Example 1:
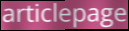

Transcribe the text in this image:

articlepage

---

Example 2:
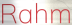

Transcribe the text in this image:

Rahm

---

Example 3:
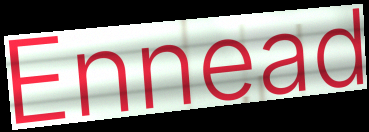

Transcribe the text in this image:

Ennead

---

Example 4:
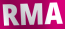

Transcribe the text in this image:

RMA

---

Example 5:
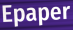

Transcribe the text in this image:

Epaper